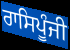
ਰਾਸਿਪੂੰਜੀ